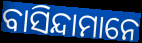
ବାସିନ୍ଦାମାନେ